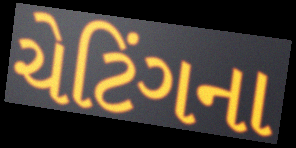
ચેટિંગના